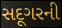
સદૂગરની